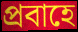
প্রবাহে